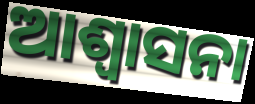
ଆଶ୍ୱାସନା